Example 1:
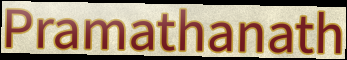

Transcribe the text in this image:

Pramathanath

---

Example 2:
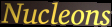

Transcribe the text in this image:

Nucleons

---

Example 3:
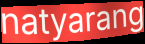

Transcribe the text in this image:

natyarang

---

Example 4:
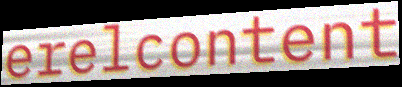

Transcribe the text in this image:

erelcontent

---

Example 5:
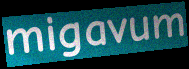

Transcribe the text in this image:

migavum